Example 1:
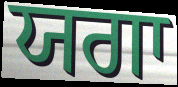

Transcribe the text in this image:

ਯਗਾ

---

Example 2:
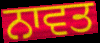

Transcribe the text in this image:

ਨਾਵਤ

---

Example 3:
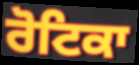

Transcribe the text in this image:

ਰੋਟਿਕਾ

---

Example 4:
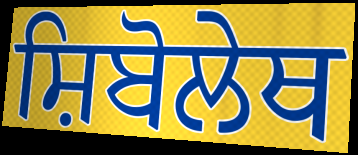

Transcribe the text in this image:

ਸ਼ਿਬੋਲੇਥ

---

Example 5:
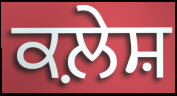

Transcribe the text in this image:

ਕਲ਼ੇਸ਼